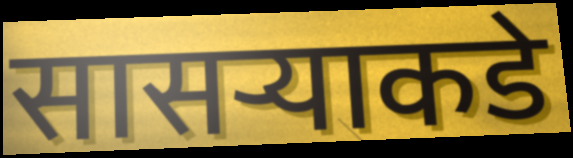
सासऱ्याकडे